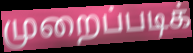
முறைப்படிக்